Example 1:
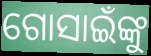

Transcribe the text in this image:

ଗୋସାଇଁଙ୍କୁ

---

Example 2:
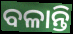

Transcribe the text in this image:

ବଳାନ୍ତି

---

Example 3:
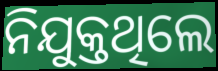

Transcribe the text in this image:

ନିଯୁକ୍ତଥିଲେ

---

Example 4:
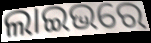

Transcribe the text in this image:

ଲାଇଭରେ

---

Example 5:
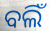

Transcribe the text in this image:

ବଲିଁ